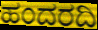
ಹಂದರದಿ